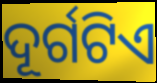
ଦୂର୍ଗଟିଏ